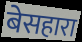
बेसहारा